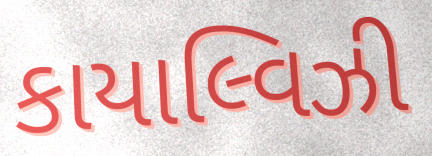
કાયાલ્વિઝી